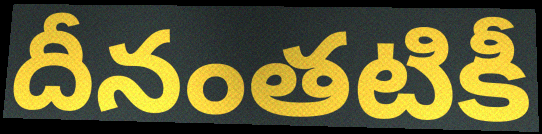
దీనంతటికీ